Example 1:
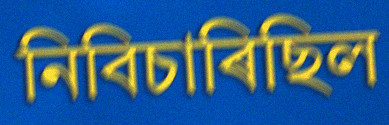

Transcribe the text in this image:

নিবিচাৰিছিল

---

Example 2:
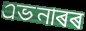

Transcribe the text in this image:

এভনাৰৰ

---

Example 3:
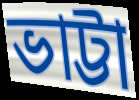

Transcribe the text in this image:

ভাট্টা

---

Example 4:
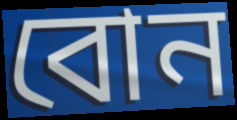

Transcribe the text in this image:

বোন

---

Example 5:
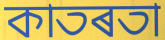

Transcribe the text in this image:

কাতৰতা